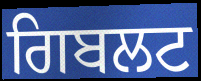
ਗਿਬਲਟ